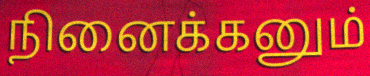
நினைக்கனும்